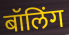
बॉलिंग